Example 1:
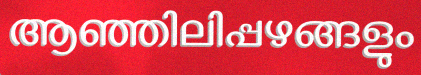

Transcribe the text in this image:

ആഞ്ഞിലിപ്പഴങ്ങളും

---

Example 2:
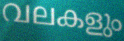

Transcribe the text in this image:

വലകളും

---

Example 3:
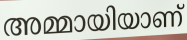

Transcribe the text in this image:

അമ്മായിയാണ്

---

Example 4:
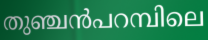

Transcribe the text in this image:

തുഞ്ചൻപറമ്പിലെ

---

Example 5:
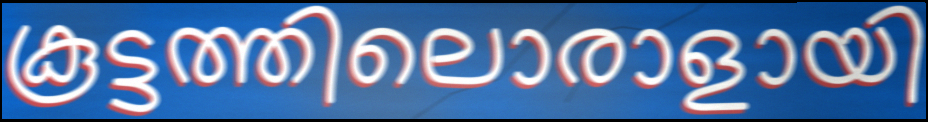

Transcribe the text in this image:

കൂട്ടത്തിലൊരാളായി